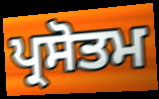
ਪ੍ਰਸੋਤਮ